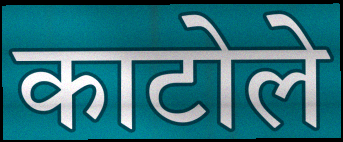
काटोले